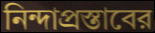
নিন্দাপ্রস্তাবের